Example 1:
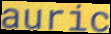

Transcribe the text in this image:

auric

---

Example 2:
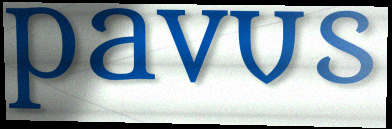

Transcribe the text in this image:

pavus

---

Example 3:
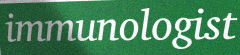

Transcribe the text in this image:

immunologist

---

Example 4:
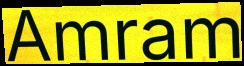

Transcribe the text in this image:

Amram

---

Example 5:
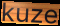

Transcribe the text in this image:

kuze